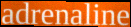
adrenaline